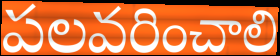
పలవరించాలి